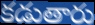
కడుతారు